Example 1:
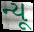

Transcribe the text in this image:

ન્યૂ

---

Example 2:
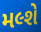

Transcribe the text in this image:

મલ્શે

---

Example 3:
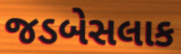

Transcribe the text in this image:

જડબેસલાક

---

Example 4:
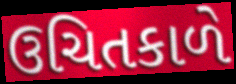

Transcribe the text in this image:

ઉચિતકાળે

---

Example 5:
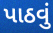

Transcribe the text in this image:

પાઠવું